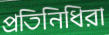
প্রতিনিধিরা